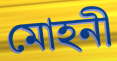
মোহনী